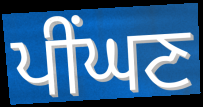
ਪੀਂਘਣ